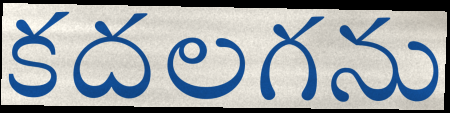
కదలగను